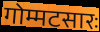
गोम्मटसारः